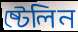
ষ্টেলিন